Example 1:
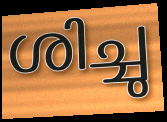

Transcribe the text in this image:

ശിച്ചു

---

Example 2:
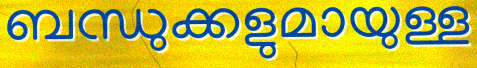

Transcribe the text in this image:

ബന്ധുക്കളുമായുള്ള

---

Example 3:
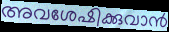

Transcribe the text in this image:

അവശേഷിക്കുവാൻ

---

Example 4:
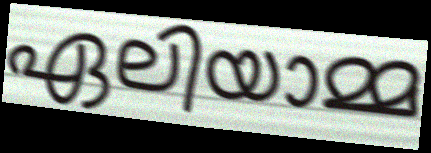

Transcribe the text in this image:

ഏലിയാമ്മ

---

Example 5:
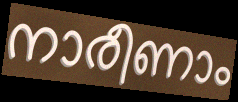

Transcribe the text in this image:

നാരീണാം